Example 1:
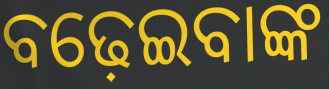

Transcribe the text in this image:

ବଢ଼େଇବାଙ୍କ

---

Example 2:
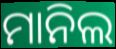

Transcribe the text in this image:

ମାନିଲ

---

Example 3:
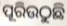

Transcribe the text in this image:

ପୂରିଉଠୁଛି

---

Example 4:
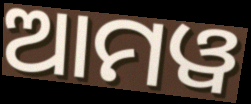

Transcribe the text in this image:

ଆମୱ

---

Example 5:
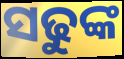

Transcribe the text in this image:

ସଢୁଙ୍କ